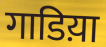
गाडिय़ा